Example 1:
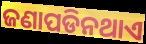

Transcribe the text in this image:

ଜଣାପଡିନଥାଏ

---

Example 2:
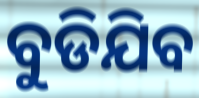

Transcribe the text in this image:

ବୁଡିଯିବ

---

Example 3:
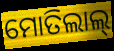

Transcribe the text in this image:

ମୋତିଲାଲ୍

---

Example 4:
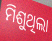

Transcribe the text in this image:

ମିଶୁଥିଲା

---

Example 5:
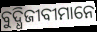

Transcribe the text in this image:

ବୁଦ୍ଧିଜୀବୀମାନେ